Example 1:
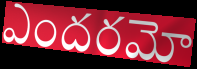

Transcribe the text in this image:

ఎందరమో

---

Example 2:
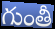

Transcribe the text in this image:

గుంతీ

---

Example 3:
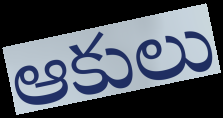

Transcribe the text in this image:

ఆకులు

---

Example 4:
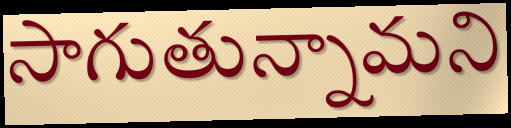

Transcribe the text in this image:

సాగుతున్నామని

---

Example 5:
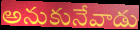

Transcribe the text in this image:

అనుకునేవాడు